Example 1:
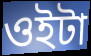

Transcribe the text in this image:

ওইটা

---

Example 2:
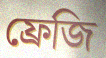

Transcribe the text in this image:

ফ্রেজি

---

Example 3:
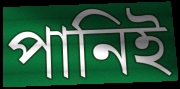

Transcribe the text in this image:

পানিই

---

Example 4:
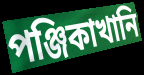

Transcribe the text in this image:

পঞ্জিকাখানি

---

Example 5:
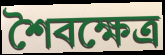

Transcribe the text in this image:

শৈবক্ষেত্র